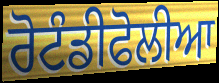
ਰੋਟੰਡੀਫੋਲੀਆ